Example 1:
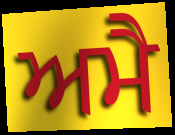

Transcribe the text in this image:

ਅਮੈ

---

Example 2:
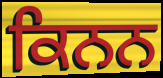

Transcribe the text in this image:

ਕਿਨਨ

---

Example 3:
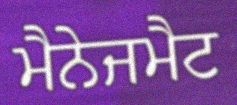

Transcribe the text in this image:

ਮੈਨੇਜਮੈਟ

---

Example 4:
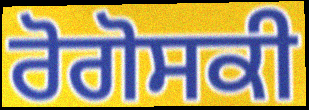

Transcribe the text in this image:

ਰੋਗੋਸਕੀ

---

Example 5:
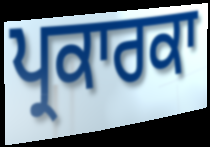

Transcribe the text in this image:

ਪ੍ਰਕਾਰਕਾ